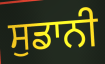
ਸੁਡਾਨੀ